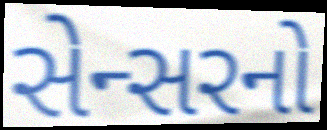
સેન્સરનો